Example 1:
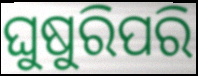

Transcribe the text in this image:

ଘୁଷୁରିପରି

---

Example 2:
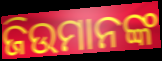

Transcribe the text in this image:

ଜିଉମାନଙ୍କ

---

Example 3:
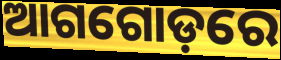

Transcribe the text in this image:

ଆଗଗୋଡ଼ରେ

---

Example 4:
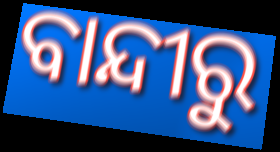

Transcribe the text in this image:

ବାନ୍ଦୀରୁ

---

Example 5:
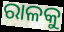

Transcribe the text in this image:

ରାଳକୁ